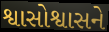
શ્વાસોશ્વાસને